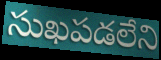
సుఖపడలేని